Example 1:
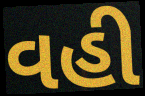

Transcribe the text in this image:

વહી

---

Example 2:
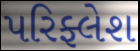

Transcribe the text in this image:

પરિફ્લેશ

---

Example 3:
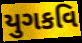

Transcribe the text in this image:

યુગકવિ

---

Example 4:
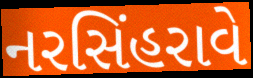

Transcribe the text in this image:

નરસિંહરાવે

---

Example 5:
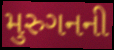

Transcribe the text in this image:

મુરુગનની